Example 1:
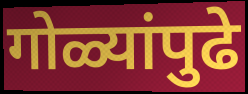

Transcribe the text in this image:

गोळ्यांपुढे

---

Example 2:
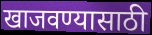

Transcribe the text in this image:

खाजवण्यासाठी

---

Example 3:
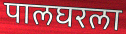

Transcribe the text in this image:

पालघरला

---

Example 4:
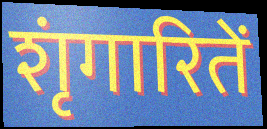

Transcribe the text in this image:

शृंगारितें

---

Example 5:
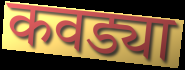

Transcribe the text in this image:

कवड्या